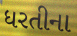
ધરતીના